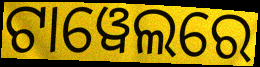
ଟାୱେଲରେ